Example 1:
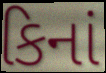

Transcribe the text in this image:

કિનાં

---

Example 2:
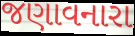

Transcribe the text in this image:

જણાવનારા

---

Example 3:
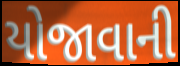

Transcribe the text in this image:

યોજાવાની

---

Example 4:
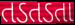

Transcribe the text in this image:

તડતડતા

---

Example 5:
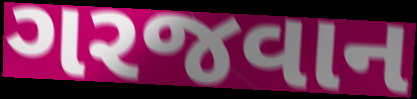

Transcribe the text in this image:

ગરજવાન